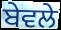
ਬੇਵਲੇ